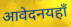
आवेदनयहाँ